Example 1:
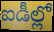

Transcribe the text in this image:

ఐడీల్లో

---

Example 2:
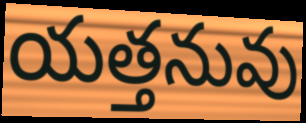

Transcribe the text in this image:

యత్తనువు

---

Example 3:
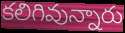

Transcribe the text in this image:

కలిగివున్నారు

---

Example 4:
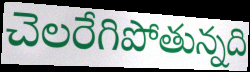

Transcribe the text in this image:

చెలరేగిపోతున్నది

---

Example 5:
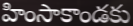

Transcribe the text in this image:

హింసాకాండకు